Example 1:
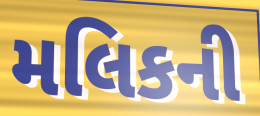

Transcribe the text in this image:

મલિકની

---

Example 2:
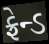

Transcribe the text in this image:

ફ્રેન્ડ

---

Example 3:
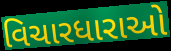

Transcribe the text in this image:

વિચારધારાઓ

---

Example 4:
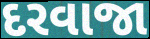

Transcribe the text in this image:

દરવાજા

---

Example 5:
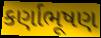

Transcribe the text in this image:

કર્ણાભૂષણ